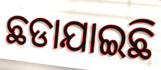
ଛଡାଯାଇଛି